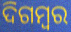
ଦିଗମ୍ୱର